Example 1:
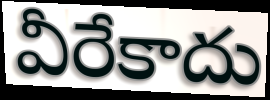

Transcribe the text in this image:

వీరేకాదు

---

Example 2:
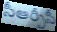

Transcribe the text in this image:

సీఆర్పీసీ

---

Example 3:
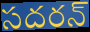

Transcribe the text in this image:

సదరన్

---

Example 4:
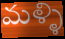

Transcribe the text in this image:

మళ్ళి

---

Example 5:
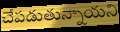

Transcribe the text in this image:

చేపడుతున్నాయని